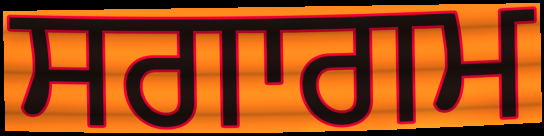
ਸਗਾਗਮ